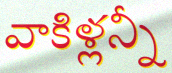
వాకిళ్లన్నీ